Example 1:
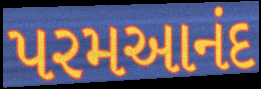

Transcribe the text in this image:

પરમઆનંદ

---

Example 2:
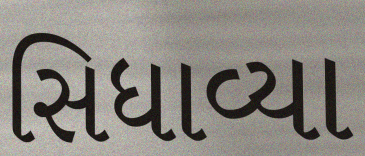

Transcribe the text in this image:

સિધાવ્યા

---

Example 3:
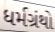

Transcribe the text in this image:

ધર્મગ્રંથો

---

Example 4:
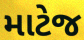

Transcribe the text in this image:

માટેજ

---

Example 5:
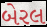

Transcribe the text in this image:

બેરલ